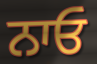
ਨਾਓ